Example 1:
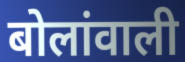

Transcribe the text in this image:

बोलांवाली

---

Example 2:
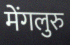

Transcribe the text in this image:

मेंगलुरु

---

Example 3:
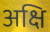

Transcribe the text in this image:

अक्षि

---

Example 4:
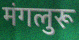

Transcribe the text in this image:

मंगलुरू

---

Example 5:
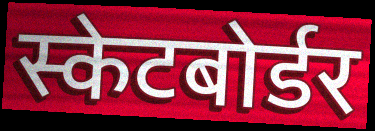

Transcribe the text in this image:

स्केटबोर्डर